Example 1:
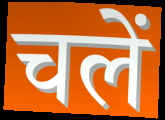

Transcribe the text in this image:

चलें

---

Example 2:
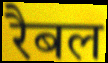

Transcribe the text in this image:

रैबल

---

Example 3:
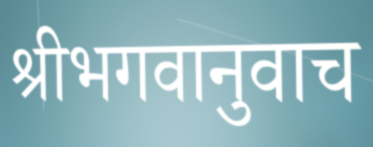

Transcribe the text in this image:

श्रीभगवानुवाच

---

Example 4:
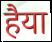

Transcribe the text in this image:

हैया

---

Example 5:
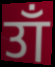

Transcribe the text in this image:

उाँ